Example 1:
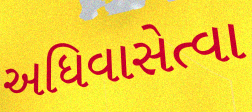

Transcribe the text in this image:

અધિવાસેત્વા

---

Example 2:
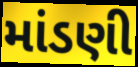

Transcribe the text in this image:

માંડણી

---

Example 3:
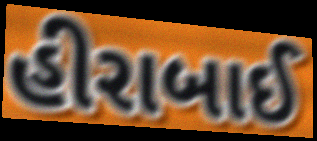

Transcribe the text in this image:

હીરાબાઈ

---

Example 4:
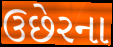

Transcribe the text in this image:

ઉછેરના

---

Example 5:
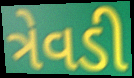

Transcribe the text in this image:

ત્રેવડી